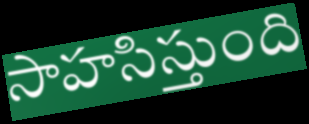
సాహసిస్తుంది